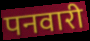
पनवारी